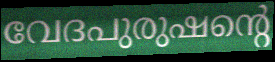
വേദപുരുഷന്റെ